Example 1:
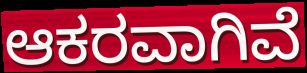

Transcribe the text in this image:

ಆಕರವಾಗಿವೆ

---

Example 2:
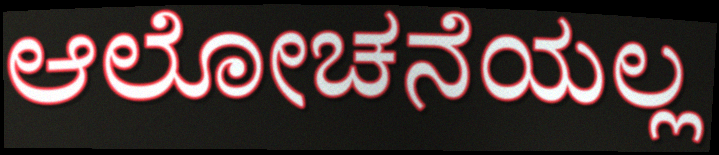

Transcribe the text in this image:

ಆಲೋಚನೆಯಲ್ಲ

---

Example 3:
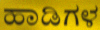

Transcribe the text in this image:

ಹಾಡಿಗಳ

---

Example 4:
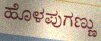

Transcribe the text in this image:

ಹೊಳಪುಗಣ್ಣು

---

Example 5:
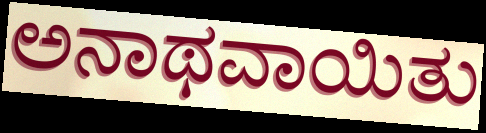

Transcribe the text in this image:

ಅನಾಥವಾಯಿತು